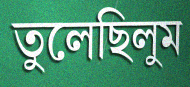
তুলেছিলুম